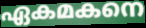
ഏകമകനെ